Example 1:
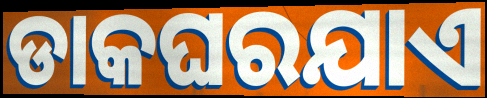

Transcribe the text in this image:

ଡାକଘରଯାଏ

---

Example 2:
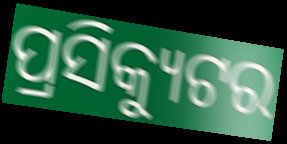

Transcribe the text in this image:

ପ୍ରସିକ୍ୟୁଟର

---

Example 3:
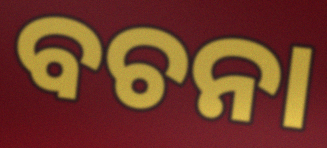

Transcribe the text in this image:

ବଚନା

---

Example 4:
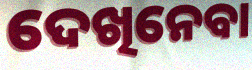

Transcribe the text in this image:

ଦେଖିନେବା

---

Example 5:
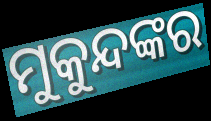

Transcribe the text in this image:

ମୁକୁନ୍ଦଙ୍କର